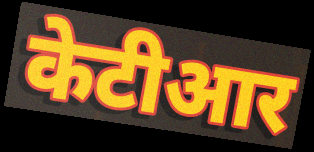
केटीआर